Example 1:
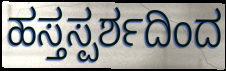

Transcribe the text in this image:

ಹಸ್ತಸ್ಪರ್ಶದಿಂದ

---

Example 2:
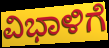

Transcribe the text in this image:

ವಿಭಾಳಿಗೆ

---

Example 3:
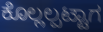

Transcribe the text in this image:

ಕೊಲ್ಲಲ್ಪಟ್ಟಾಗ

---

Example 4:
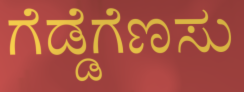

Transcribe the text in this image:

ಗೆಡ್ಡೆಗೆಣಸು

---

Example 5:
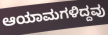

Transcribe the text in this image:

ಆಯಾಮಗಳಿದ್ದವು